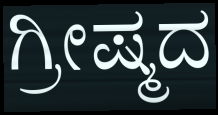
ಗ್ರೀಷ್ಮದ